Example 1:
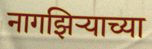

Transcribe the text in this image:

नागझिऱ्याच्या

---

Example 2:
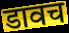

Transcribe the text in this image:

डावच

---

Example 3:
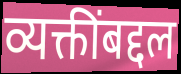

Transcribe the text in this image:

व्यक्तींबद्दल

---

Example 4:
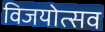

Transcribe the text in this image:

विजयोत्सव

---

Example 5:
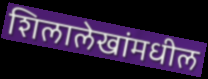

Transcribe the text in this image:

शिलालेखांमधील